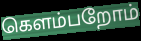
கெளம்பறோம்